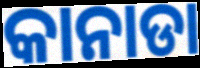
କାନାଡା